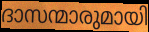
ദാസന്മാരുമായി